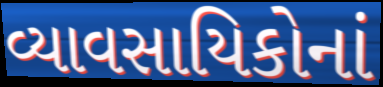
વ્યાવસાયિકોનાં